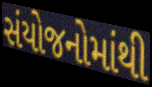
સંયોજનોમાંથી